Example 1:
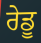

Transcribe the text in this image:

ਰੇਡੂ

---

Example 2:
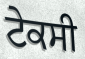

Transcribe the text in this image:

ਟੇਕਸੀ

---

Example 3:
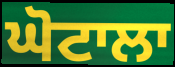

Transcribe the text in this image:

ਘੋਟਾਲਾ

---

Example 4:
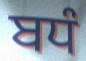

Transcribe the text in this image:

ਬਧੰ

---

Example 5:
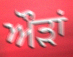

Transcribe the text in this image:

ਔੜਾਂ